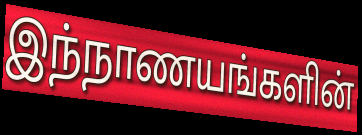
இந்நாணயங்களின்